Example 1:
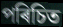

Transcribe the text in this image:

পৰিচিত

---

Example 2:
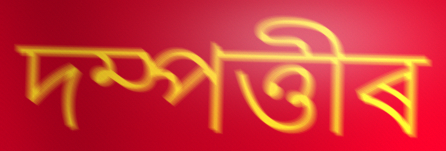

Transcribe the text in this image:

দম্পত্তীৰ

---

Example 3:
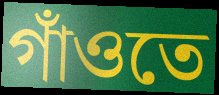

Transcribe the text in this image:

গাঁওতে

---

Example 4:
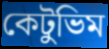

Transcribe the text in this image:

কেটুভিম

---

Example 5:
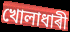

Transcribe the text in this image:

খোলাধাৰী